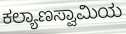
ಕಲ್ಯಾಣಸ್ವಾಮಿಯ